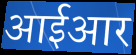
आईआर